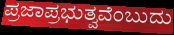
ಪ್ರಜಾಪ್ರಭುತ್ವವೆಂಬುದು